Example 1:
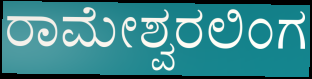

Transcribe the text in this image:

ರಾಮೇಶ್ವರಲಿಂಗ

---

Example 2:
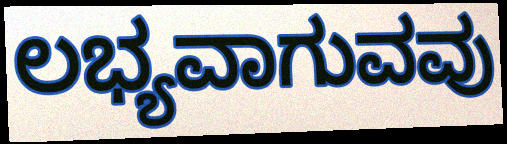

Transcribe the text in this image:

ಲಭ್ಯವಾಗುವವು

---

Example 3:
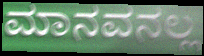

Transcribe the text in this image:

ಮಾನವನಲ್ಲ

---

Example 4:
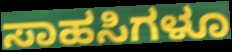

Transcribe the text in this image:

ಸಾಹಸಿಗಳೂ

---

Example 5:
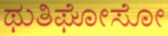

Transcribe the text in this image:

ಥುತಿಘೋಸೋ